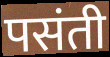
पसंती